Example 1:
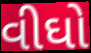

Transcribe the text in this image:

વીઘો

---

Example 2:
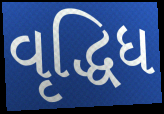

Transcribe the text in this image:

વૃદ્ધિધ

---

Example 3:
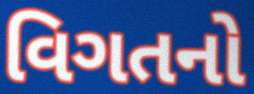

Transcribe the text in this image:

વિગતનો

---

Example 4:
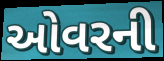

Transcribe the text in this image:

ઓવરની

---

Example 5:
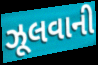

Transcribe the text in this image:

ઝૂલવાની